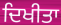
ਦਿਖੀਤਾ